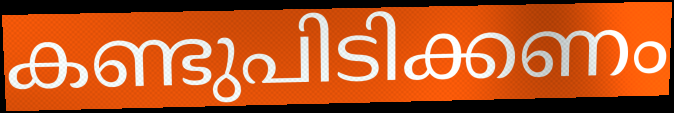
കണ്ടുപിടിക്കണം